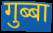
गुब्बा